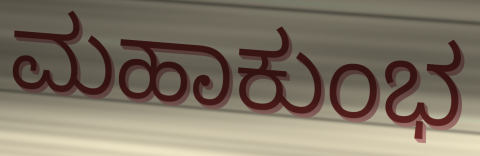
ಮಹಾಕುಂಭ